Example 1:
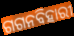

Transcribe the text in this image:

ଗଗନବିହାରୀ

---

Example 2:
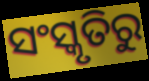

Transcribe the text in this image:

ସଂସ୍କୃତିରୁ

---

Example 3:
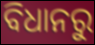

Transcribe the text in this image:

ବିଧାନରୁ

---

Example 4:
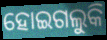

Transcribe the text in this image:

ହୋଇଗଲୁକି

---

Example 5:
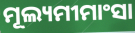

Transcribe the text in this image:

ମୂଲ୍ୟମୀମାଂସା